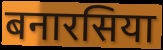
बनारसिया